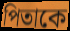
পিতাকে